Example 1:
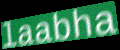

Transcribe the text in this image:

laabha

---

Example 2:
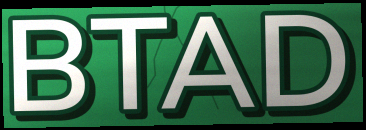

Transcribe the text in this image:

BTAD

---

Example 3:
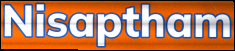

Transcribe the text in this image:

Nisaptham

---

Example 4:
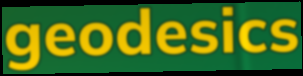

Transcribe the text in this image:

geodesics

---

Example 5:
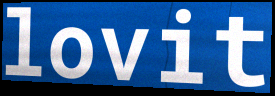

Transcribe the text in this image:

lovit